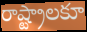
రాష్ట్రాలకూ